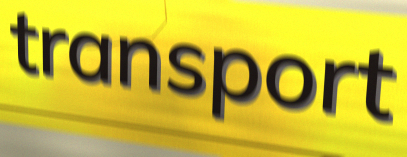
transport